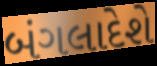
બંગલાદેશે